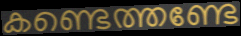
കണ്ടെത്തണ്ടേ